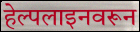
हेल्पलाइनवरून